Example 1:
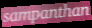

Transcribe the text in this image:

sampanthan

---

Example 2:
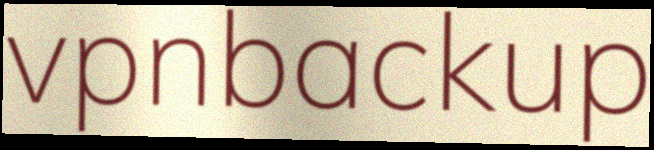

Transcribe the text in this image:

vpnbackup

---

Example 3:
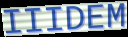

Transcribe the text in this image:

IIIDEM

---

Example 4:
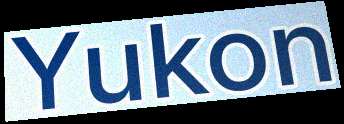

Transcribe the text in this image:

Yukon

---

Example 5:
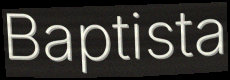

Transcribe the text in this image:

Baptista